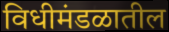
विधीमंडळातील